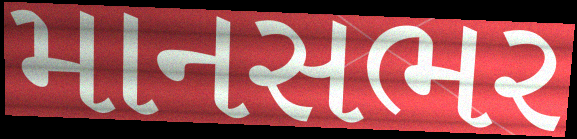
માનસભર